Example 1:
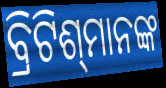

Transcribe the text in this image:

ବ୍ରିଟିଶ୍‌ମାନଙ୍କ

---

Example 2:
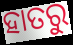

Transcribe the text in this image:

ହାତରୁ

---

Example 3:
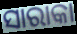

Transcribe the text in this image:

ସାରାକା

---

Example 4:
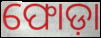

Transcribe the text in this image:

ଫୋଡ଼ା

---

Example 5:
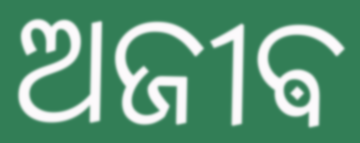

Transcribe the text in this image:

ଅଜୀଵ